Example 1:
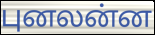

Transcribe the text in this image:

புனலன்ன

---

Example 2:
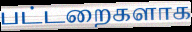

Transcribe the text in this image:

பட்டறைகளாக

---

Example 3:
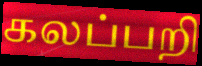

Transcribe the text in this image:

கலப்பறி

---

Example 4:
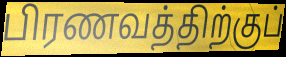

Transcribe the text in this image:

பிரணவத்திற்குப்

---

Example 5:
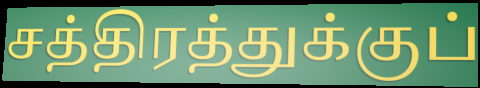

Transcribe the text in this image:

சத்திரத்துக்குப்